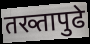
तख्तापुढे